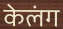
केलंग